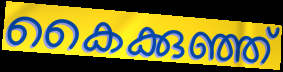
കൈക്കുഞ്ഞ്